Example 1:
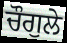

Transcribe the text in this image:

ਚੌਗੁਲੇ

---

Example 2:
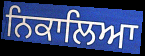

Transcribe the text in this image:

ਨਿਕਾਲਿਆ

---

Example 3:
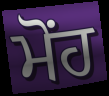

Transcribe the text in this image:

ਮੋਂਹ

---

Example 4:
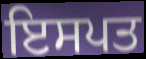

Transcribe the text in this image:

ਇਸਪਤ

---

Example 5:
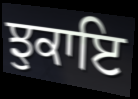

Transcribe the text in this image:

ਝੁਕਾਇ